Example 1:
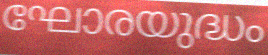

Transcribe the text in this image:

ഘോരയുദ്ധം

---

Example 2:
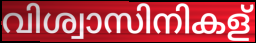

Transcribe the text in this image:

വിശ്വാസിനികള്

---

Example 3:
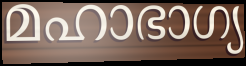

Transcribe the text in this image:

മഹാഭാഗ്യ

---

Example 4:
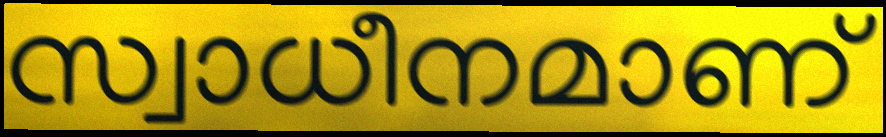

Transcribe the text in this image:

സ്വാധീനമാണ്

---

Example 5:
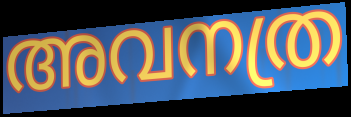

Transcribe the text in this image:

അവനത്ര